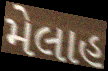
મેલાહ